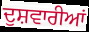
ਦੁਸ਼ਵਾਰੀਆਂ